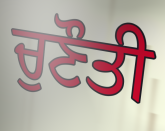
ਚੁਣੌਤੀ